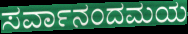
ಸರ್ವಾನಂದಮಯ